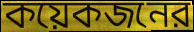
কয়েকজনের